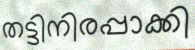
തട്ടിനിരപ്പാക്കി